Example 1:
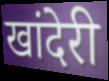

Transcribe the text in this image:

खांदेरी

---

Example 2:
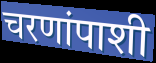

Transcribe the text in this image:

चरणांपाशी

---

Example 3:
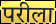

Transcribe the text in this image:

परीला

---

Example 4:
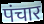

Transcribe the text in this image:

पंचार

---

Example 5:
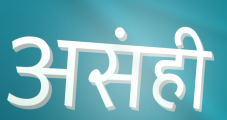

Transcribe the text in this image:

असंही